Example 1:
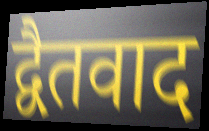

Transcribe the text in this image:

द्वैतवाद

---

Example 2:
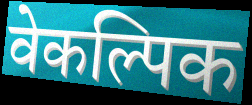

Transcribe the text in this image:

वेकल्पिक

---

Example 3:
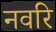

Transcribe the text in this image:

नवरि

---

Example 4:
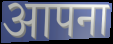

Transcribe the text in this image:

आपना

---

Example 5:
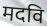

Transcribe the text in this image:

मदवि